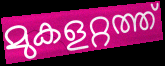
മുകളറ്റത്ത്